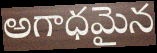
అగాధమైన